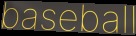
baseball